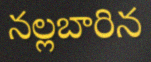
నల్లబారిన